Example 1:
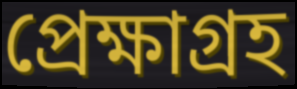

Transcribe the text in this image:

প্রেক্ষাগ্রহ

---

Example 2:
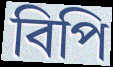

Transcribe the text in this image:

বিপি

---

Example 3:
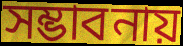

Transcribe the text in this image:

সম্ভাবনায়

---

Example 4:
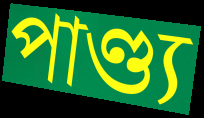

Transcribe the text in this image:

পাণ্ড্য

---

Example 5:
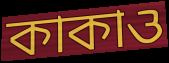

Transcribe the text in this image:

কাকাও